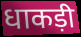
धाकड़ी